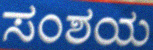
ಸಂಶಯ